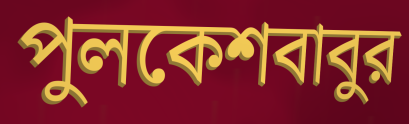
পুলকেশবাবুর